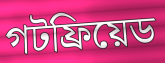
গটফ্রিয়েড